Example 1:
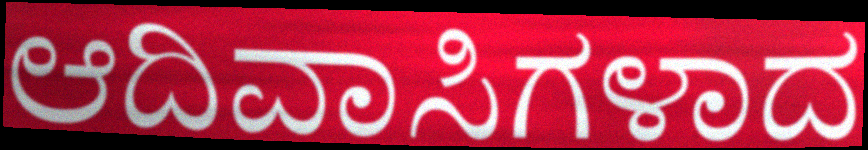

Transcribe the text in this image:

ಆದಿವಾಸಿಗಳಾದ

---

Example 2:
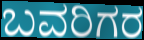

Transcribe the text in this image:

ಬವರಿಗರ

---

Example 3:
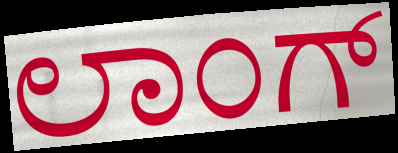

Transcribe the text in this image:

ಲಾಂಗ್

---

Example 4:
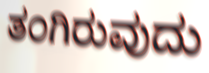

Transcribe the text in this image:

ತಂಗಿರುವುದು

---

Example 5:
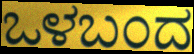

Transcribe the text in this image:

ಒಳಬಂದ